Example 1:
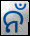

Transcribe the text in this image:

ନଁ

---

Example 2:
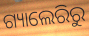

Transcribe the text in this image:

ଗ୍ୟାଲେରିରୁ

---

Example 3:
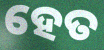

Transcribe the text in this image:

ହେତ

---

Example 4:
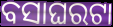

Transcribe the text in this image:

ବସାଘରଟା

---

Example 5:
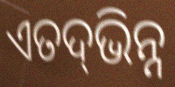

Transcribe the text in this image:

ଏତଦ୍‍ଭିନ୍ନ